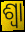
ଶ୍ୱା